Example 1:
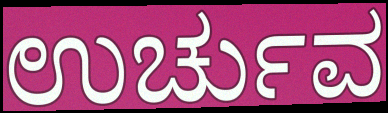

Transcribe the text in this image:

ಉರ್ಚುವ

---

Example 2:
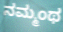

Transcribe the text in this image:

ನಮ್ಮಂಥ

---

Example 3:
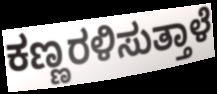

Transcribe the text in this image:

ಕಣ್ಣರಳಿಸುತ್ತಾಳೆ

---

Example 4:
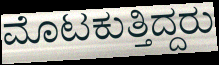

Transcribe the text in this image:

ಮೊಟಕುತ್ತಿದ್ದರು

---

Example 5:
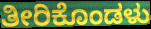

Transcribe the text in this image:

ತೀರಿಕೊಂಡಳು